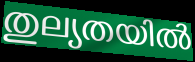
തുല്യതയിൽ